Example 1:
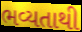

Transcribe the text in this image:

ભવ્યતાથી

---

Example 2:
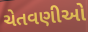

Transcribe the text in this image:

ચેતવણીઓ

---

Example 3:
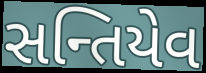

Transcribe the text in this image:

સન્તિયેવ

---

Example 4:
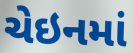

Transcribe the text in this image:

ચેઇનમાં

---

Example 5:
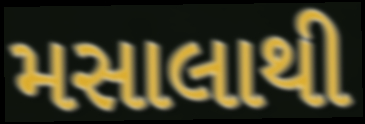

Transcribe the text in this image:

મસાલાથી